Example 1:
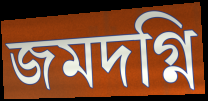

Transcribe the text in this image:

জমদগ্নি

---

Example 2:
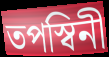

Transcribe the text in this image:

তপস্বিনী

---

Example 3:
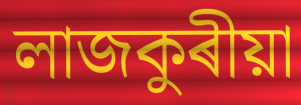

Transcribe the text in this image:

লাজকুৰীয়া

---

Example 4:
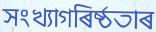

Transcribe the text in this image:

সংখ্যাগৰিষ্ঠতাৰ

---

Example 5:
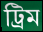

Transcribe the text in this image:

ট্ৰিম